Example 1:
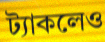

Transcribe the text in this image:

ট্যাকলেও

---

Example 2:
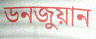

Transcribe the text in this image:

ডনজুয়ান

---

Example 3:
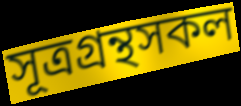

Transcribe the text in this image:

সূত্রগ্রন্থসকল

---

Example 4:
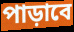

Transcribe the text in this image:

পাড়াবে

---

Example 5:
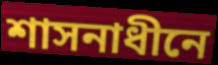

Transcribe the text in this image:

শাসনাধীনে